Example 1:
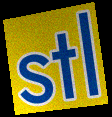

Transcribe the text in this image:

stl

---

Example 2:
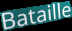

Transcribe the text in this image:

Bataille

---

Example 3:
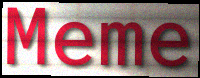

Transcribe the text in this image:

Meme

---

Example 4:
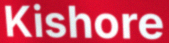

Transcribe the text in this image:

Kishore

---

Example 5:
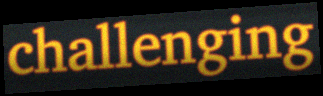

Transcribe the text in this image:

challenging